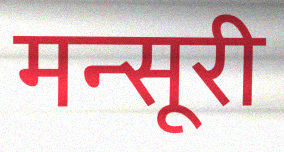
मन्सूरी